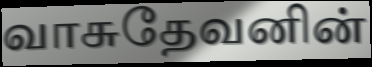
வாசுதேவனின்